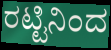
ರಟ್ಟಿನಿಂದ